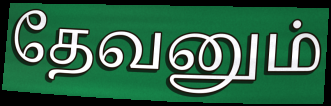
தேவனும்